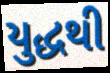
યુદ્ધથી